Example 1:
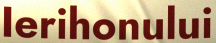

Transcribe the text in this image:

Ierihonului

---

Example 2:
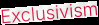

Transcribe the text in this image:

Exclusivism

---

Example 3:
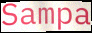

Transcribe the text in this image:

Sampa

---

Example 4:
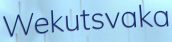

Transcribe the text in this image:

Wekutsvaka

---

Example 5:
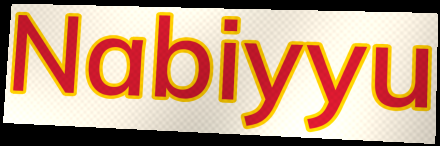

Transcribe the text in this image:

Nabiyyu